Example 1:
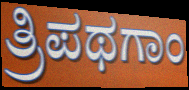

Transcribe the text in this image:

ತ್ರಿಪಥಗಾಂ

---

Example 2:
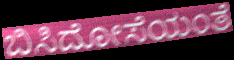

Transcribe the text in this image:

ಬಿಸಿದೋಸೆಯಂತೆ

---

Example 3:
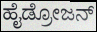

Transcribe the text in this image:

ಹೈಡ್ರೋಜನ್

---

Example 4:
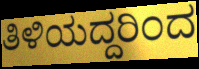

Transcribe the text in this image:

ತಿಳಿಯದ್ದರಿಂದ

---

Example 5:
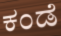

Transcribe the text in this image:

ಕಂಡೆ